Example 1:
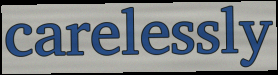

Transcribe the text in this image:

carelessly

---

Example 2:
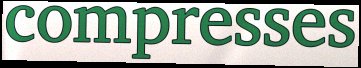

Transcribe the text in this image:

compresses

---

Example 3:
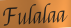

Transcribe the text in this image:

Fulalaa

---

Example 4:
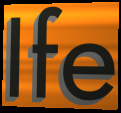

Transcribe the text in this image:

Ife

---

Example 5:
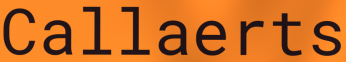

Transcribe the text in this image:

Callaerts